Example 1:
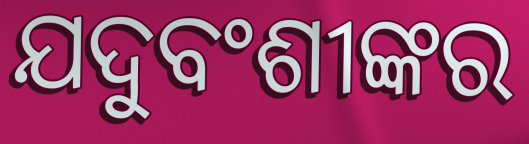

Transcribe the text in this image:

ଯଦୁବଂଶୀଙ୍କର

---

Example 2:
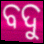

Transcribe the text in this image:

ବଦୁ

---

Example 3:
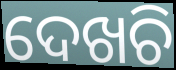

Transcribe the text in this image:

ଦେଖଚି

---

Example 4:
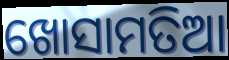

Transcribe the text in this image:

ଖୋସାମତିଆ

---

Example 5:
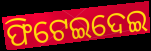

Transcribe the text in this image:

ଫିଟେଇଦେଇ